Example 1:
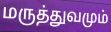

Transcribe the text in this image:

மருத்துவமும்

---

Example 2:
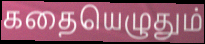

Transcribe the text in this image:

கதையெழுதும்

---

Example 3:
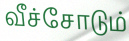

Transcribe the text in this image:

வீச்சோடும்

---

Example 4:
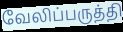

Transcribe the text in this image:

வேலிப்பருத்தி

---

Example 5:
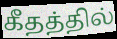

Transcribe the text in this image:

கீதத்தில்